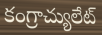
కంగ్రాచ్యులేట్